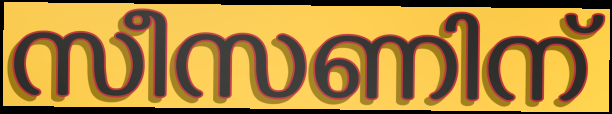
സീസണിന്